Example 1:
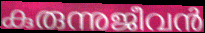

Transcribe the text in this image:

കുരുന്നുജീവൻ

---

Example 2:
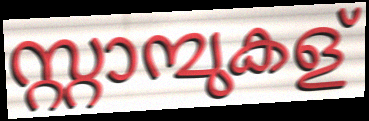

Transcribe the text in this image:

സ്റ്റാമ്പുകള്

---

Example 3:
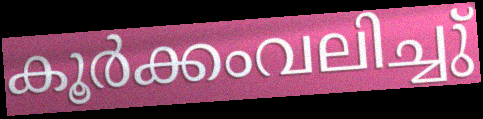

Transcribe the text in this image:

കൂർക്കംവലിച്ചു്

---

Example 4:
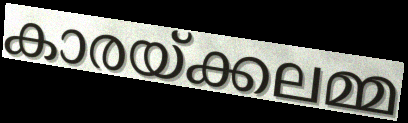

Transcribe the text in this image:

കാരയ്ക്കലമ്മ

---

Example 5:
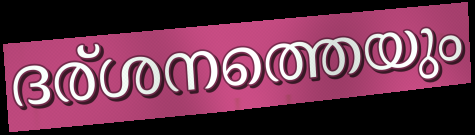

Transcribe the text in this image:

ദര്ശനത്തെയും